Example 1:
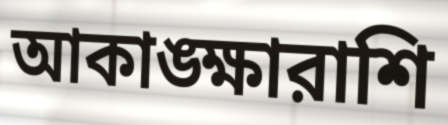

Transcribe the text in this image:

আকাঙ্ক্ষারাশি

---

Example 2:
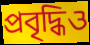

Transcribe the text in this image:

প্রবৃদ্ধিও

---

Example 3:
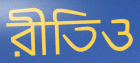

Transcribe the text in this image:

রীতিও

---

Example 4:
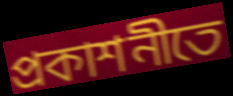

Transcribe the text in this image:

প্রকাশনীতে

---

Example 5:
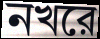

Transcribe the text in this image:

নখরে